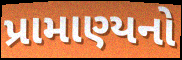
પ્રામાણ્યનો